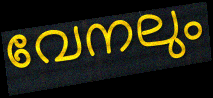
വേനലും